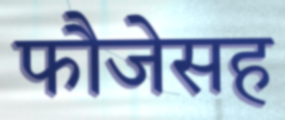
फौजेसह